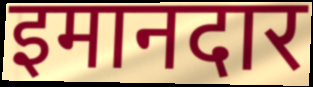
इमानदार